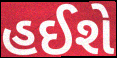
હઈશે